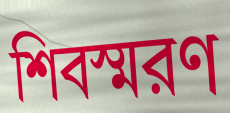
শিবস্মরণ